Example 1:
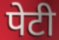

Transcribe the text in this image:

पेटी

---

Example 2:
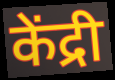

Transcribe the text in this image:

केंद्री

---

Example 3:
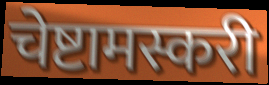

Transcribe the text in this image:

चेष्टामस्करी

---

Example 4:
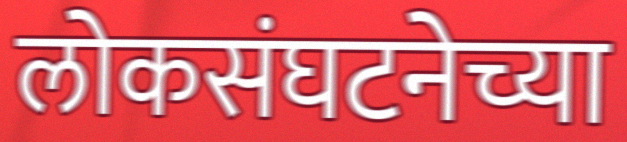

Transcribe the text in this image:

लोकसंघटनेच्या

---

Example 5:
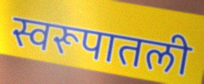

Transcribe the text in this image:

स्वरूपातली